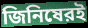
জিনিষেরই